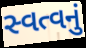
સ્વત્વનું